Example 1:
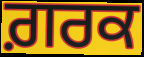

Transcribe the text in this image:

ਗ਼ਰਕ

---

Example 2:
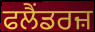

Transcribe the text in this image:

ਫਲੈਂਡਰਜ਼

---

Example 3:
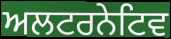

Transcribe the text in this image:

ਅਲਟਰਨੇਟਿਵ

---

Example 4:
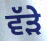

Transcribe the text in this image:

ਵੱਡ਼ੇ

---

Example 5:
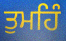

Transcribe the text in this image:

ਤੁਮਹਿੰ